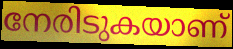
നേരിടുകയാണ്